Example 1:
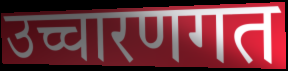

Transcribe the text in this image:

उच्चारणगत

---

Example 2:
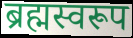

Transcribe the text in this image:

ब्रह्मस्वरूप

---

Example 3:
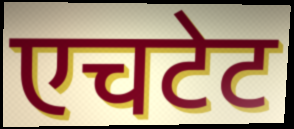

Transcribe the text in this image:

एचटेट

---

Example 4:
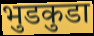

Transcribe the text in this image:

भुडकुडा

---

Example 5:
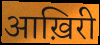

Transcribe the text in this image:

आख़िरी